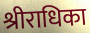
श्रीराधिका